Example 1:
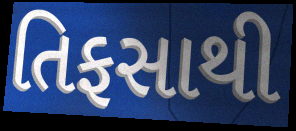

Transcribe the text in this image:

તિફસાથી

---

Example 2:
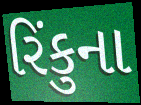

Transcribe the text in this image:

રિંકુના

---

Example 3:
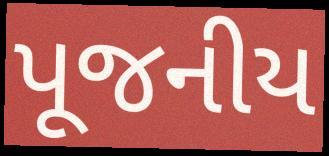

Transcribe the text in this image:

પૂજનીય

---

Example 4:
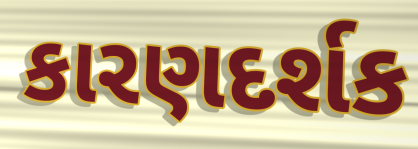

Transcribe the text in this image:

કારણદર્શક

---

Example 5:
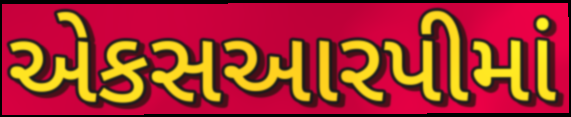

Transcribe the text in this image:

એકસઆરપીમાં